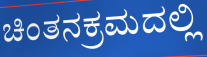
ಚಿಂತನಕ್ರಮದಲ್ಲಿ